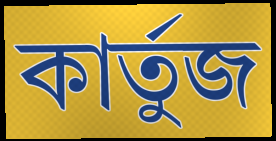
কার্তুজ